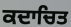
ਕਦਾਚਿਤ